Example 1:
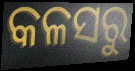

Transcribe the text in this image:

କଳସରୁ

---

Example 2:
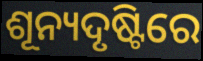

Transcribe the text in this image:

ଶୂନ୍ୟଦୃଷ୍ଟିରେ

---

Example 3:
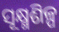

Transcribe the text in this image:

ସୂକ୍ଷ୍ମଶିଳ୍ପ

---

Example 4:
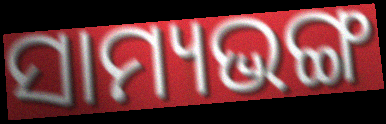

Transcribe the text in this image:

ସାମ୍ଯଭଙ୍ଗ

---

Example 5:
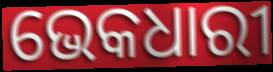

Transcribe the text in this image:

ଭେକଧାରୀ